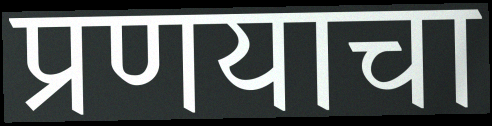
प्रणयाचा